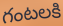
గంటలకి